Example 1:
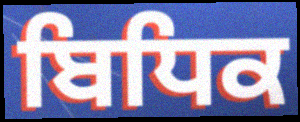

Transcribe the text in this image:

ਬਿਧਿਕ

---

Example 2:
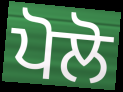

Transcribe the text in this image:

ਪੋਲੋ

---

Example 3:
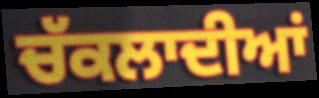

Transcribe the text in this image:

ਚੱਕਲਾਦੀਆਂ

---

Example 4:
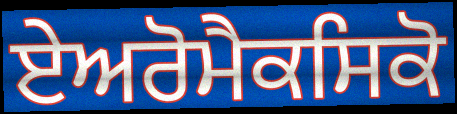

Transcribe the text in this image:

ਏਅਰੋਮੈਕਸਿਕੋ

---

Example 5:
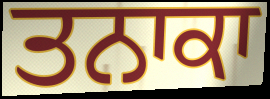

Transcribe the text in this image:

ਤਨਾਕਾ